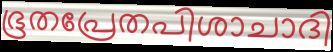
ഭൂതപ്രേതപിശാചാദി